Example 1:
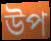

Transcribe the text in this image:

উপ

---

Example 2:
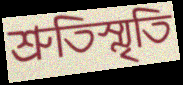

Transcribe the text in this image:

শ্রুতিস্মৃতি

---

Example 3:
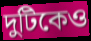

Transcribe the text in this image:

দুটিকেও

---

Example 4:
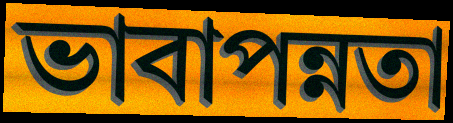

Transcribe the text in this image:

ভাবাপন্নতা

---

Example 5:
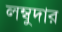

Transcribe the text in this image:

লম্বুদার